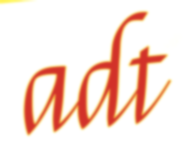
adt